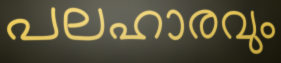
പലഹാരവും